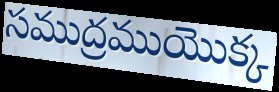
సముద్రముయొక్క